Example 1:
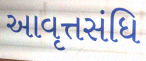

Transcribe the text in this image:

આવૃત્તસંધિ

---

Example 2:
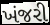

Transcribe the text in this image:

ખંજરી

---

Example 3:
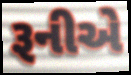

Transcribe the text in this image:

રૂનીએ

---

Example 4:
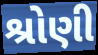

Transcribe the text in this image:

શ્રોણી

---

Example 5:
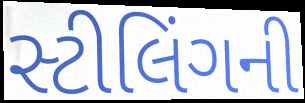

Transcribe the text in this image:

સ્ટીલિંગની